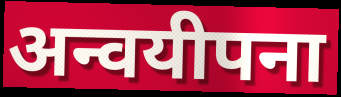
अन्वयीपना